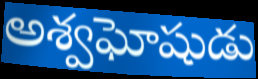
అశ్వఘోషుడు